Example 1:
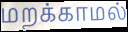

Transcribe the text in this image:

மறக்காமல்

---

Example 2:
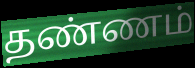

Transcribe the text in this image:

தண்ணம்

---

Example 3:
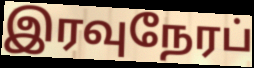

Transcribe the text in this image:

இரவுநேரப்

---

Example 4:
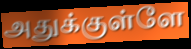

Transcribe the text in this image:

அதுக்குள்ளே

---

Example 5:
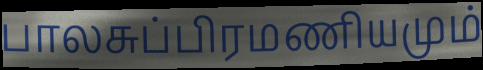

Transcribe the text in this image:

பாலசுப்பிரமணியமும்